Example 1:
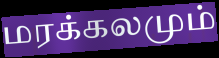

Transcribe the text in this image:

மரக்கலமும்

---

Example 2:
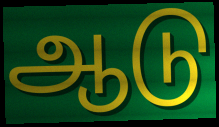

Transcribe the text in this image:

ஆடு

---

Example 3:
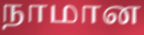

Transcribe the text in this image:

நாமான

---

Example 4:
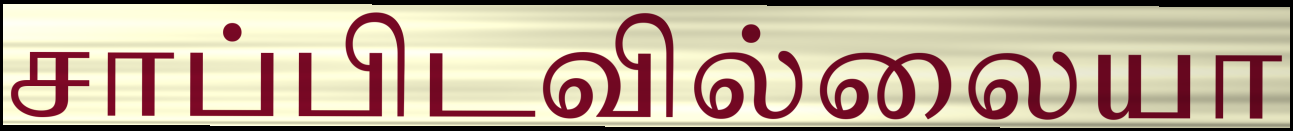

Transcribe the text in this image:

சாப்பிடவில்லையா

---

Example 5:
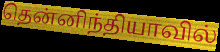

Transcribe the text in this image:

தென்னிந்தியாவில்